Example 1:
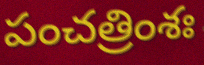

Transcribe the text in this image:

పంచత్రింశః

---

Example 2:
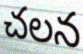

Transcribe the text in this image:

చలన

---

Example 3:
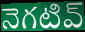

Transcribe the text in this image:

నెగటివ్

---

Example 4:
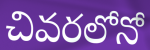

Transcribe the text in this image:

చివరలోనో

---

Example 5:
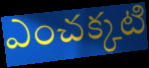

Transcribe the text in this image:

ఎంచక్కటి